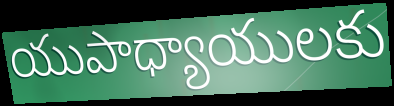
యుపాధ్యాయులకు